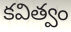
కవిత్వం